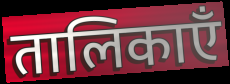
तालिकाएँ